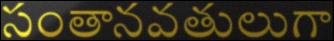
సంతానవతులుగా